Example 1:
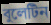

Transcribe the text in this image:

বুলেটিন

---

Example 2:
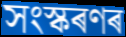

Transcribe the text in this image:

সংস্কৰণৰ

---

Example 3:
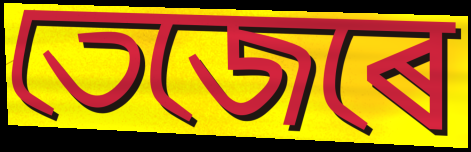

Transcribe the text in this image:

তেজেৰে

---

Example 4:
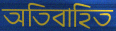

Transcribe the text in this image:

অতিবাহিত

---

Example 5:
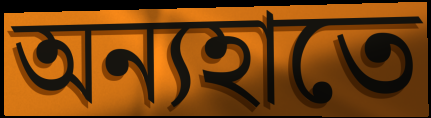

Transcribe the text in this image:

অন্যহাতে